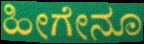
ಹೀಗೇನೂ